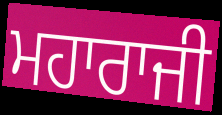
ਮਹਾਰਾਜੀ